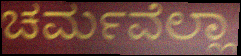
ಚರ್ಮವೆಲ್ಲಾ